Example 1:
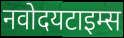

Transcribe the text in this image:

नवोदयटाइम्स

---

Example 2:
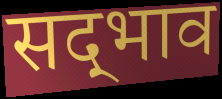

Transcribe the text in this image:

सद्‍भाव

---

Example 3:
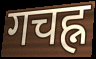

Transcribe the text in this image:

गचह्न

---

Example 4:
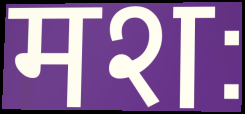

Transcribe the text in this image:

मशः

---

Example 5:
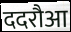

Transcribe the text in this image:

ददरौआ